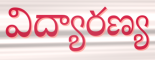
విద్యారణ్య